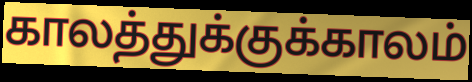
காலத்துக்குக்காலம்